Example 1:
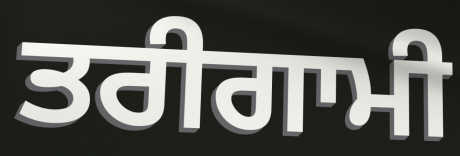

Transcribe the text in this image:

ਤਰੀਗਾਮੀ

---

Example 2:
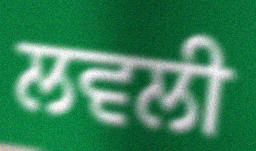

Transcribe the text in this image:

ਲਵਲੀ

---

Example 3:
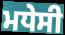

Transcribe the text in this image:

ਮਧੇਸੀ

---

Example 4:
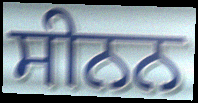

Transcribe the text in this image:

ਸੀਨਨ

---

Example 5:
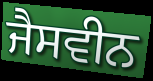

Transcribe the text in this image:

ਜੈਸਵੀਨ